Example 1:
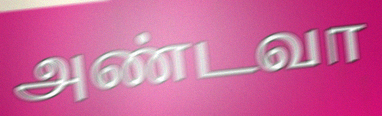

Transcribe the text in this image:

அண்டவா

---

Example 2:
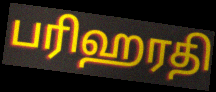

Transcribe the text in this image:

பரிஹரதி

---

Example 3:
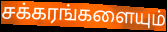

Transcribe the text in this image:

சக்கரங்களையும்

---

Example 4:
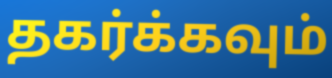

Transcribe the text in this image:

தகர்க்கவும்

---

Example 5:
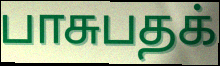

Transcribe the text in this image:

பாசுபதக்